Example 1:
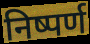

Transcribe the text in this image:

निष्पर्ण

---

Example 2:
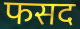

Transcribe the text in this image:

फसद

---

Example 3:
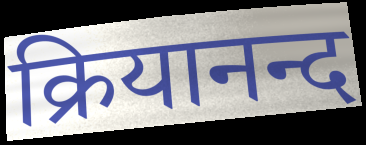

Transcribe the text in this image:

क्रियानन्द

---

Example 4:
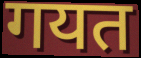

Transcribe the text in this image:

गयत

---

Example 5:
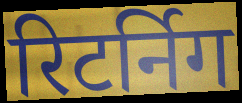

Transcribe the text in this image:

रिटर्निग